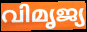
വിമൃജ്യ